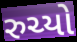
રુચ્યો